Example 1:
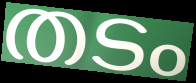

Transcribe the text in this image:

തടം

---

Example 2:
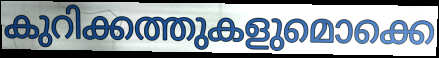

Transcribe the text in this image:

കുറിക്കത്തുകളുമൊക്കെ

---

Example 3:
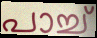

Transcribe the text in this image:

പാച്ച്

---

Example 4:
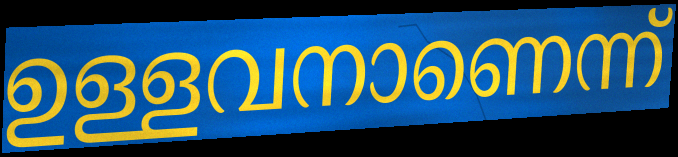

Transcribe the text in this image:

ഉള്ളവനാണെന്ന്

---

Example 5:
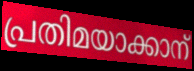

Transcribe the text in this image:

പ്രതിമയാക്കാന്